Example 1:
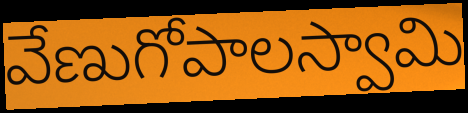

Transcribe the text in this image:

వేణుగోపాలస్వామి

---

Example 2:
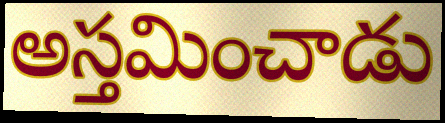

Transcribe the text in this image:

అస్తమించాడు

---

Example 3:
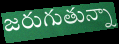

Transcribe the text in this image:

జరుగుతున్నా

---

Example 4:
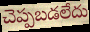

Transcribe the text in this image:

చెప్పబడలేదు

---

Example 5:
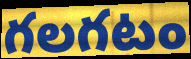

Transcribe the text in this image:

గలగటం